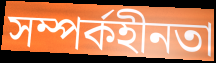
সম্পর্কহীনতা